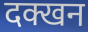
दक्खन